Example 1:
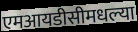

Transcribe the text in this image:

एमआयडीसीमधल्या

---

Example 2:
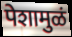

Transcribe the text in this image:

पेशामुळं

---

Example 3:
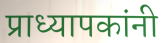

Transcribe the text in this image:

प्राध्यापकांनी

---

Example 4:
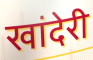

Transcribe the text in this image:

खांदेरी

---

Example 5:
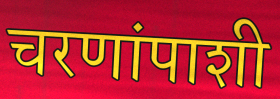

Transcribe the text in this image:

चरणांपाशी